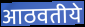
आठवतीये